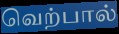
வெற்பால்